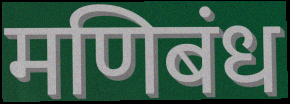
मणिबंध